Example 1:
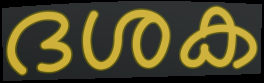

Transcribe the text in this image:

ദശക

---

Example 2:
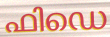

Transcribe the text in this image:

ഫിഡെ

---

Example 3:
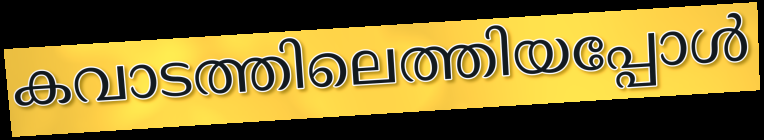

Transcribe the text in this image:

കവാടത്തിലെത്തിയപ്പോൾ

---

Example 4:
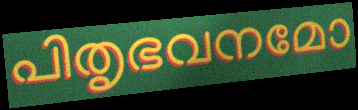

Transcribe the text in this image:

പിതൃഭവനമോ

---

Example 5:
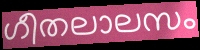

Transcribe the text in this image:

ഗീതലാലസം